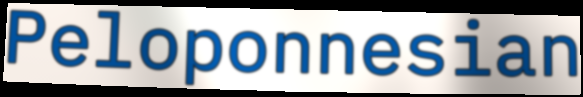
Peloponnesian